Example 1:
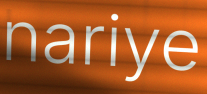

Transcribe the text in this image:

nariye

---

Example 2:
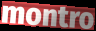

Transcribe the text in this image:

montro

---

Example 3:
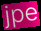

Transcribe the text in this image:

jpe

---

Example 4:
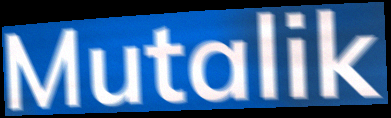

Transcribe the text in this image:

Mutalik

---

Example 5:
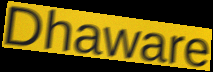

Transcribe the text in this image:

Dhaware